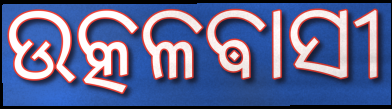
ଉତ୍କଳଵାସୀ